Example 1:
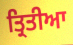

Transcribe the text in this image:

ਤ੍ਰਿਤੀਆ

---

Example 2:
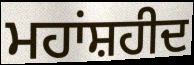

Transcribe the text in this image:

ਮਹਾਂਸ਼ਹੀਦ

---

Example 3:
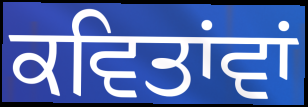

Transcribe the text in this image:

ਕਵਿਤਾਂਵਾਂ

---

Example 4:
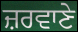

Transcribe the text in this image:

ਜ਼ਰਵਾਣੇ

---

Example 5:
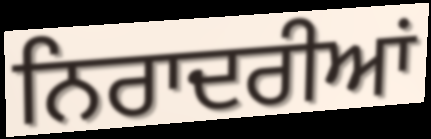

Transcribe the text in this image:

ਨਿਰਾਦਰੀਆਂ